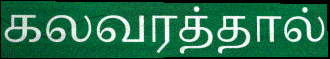
கலவரத்தால்